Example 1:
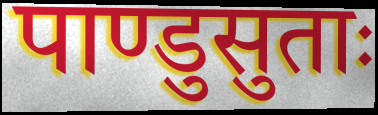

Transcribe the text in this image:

पाण्डुसुताः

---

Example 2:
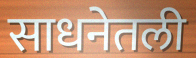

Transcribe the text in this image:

साधनेतली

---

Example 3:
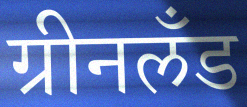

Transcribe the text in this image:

ग्रीनलँड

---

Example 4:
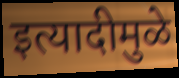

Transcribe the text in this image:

इत्यादीमुळे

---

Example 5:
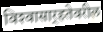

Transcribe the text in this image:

विश्वासार्हतेवरील